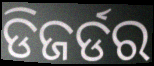
ଡିଜର୍ଡର